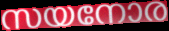
സയനോര